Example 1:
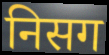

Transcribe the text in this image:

निसग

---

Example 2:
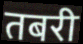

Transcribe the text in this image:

तबरी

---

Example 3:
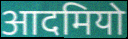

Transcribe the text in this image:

आदमियो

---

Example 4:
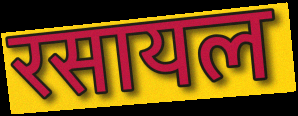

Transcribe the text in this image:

रसायल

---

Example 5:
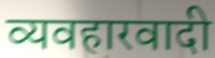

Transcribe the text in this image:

व्यवहारवादी